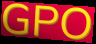
GPO